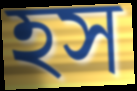
হস